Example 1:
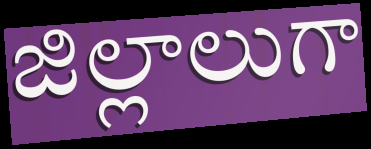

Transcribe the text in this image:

జిల్లాలుగా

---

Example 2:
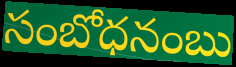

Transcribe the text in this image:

సంబోధనంబు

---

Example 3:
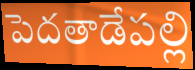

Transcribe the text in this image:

పెదతాడేపల్లి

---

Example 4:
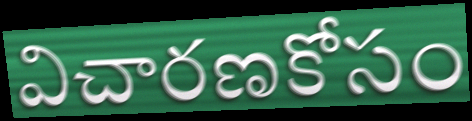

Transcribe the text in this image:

విచారణకోసం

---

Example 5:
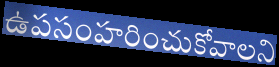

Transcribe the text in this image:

ఉపసంహరించుకోవాలని